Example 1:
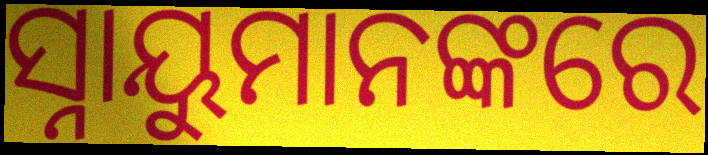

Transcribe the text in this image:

ସ୍ନାୟୁମାନଙ୍କରେ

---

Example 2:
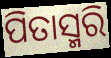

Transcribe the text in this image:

ପିତାସ୍ମରି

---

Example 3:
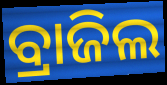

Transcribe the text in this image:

ବ୍ରାଜିଲ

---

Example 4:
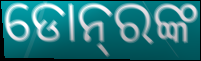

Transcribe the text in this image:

ଡୋନ୍‌ରଙ୍କ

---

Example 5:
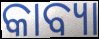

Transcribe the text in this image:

କାବ୍ୟା